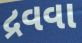
દ્રવવા